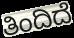
ತಿಂದಿದೆ